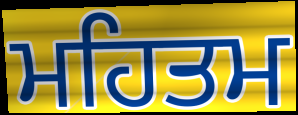
ਮਹਿਤਮ